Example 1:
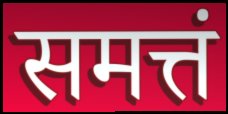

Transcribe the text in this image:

समत्तं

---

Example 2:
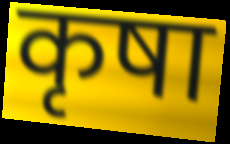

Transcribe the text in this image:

कृषा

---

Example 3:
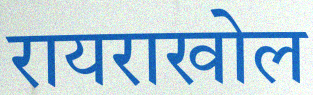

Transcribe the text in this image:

रायराखोल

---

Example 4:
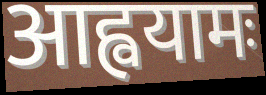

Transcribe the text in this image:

आह्वयामः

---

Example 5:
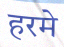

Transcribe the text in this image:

हरमे